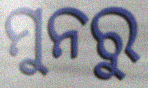
ମୁନରୁ